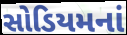
સોડિયમનાં